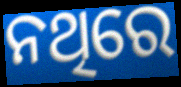
ନଥିରେ